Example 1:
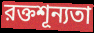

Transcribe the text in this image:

রক্তশূন্যতা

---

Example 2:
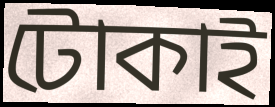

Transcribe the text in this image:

টোকাই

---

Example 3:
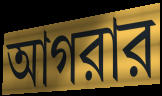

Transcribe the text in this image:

আগরার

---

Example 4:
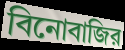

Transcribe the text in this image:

বিনোবাজির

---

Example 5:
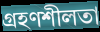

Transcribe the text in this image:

গ্রহণশীলতা